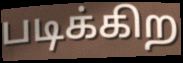
படிக்கிற